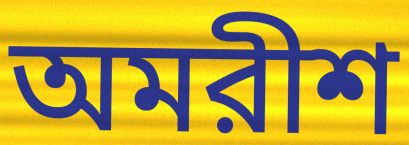
অমরীশ